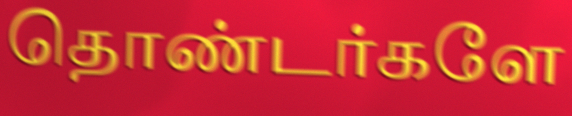
தொண்டர்களே